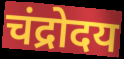
चंद्रोदय